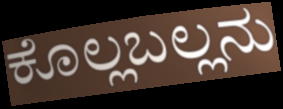
ಕೊಲ್ಲಬಲ್ಲನು